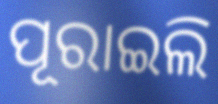
ପୂରାଇଲି